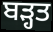
ਬੜ੍ਹਤ